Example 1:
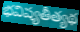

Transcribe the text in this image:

భవిష్యతీత్యథ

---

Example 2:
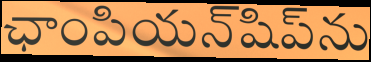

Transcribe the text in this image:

ఛాంపియన్‌షిప్‌ను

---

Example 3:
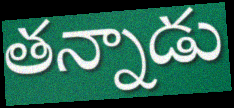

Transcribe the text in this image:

తన్నాడు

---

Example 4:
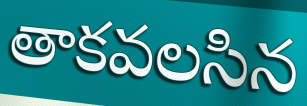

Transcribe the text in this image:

తాకవలసిన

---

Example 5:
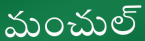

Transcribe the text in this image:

మంచుల్